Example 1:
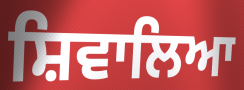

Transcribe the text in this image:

ਸ਼ਿਵਾਲਿਆ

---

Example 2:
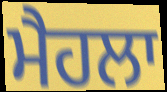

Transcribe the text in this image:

ਮੈਹਲਾ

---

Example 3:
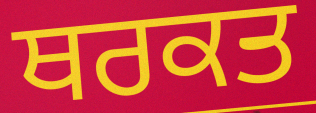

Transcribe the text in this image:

ਥਰਕਤ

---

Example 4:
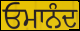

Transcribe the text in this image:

ਓਮਾਨੰਦ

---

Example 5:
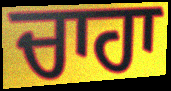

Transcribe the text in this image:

ਚਾਹਾ